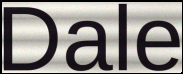
Dale